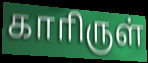
காரிருள்